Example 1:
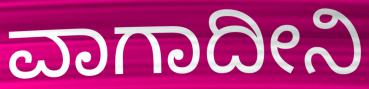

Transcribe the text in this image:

ವಾಗಾದೀನಿ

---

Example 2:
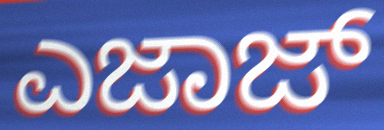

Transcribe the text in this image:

ಎಜಾಜ್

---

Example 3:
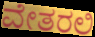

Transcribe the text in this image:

ವೇತರಲಿ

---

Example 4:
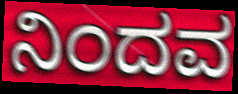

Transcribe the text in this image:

ನಿಂದವ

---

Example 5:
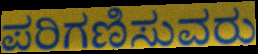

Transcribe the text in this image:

ಪರಿಗಣಿಸುವರು